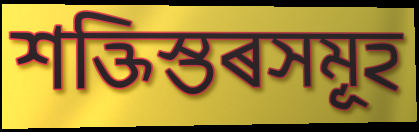
শক্তিস্তৰসমূহ